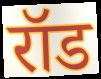
रॉड